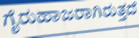
ಗೈರುಹಾಜರಾಗಿರುತ್ತದೆ